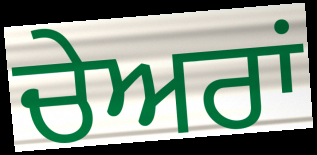
ਚੇਅਰਾਂ